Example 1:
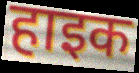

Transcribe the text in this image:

हाइक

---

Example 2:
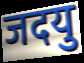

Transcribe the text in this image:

जदयु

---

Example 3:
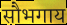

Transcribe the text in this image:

सौभगाय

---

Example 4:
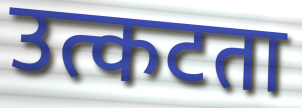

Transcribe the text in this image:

उत्कटता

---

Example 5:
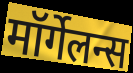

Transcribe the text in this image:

मॉर्गेलन्स